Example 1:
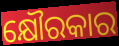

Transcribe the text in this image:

କ୍ଷୌରକାର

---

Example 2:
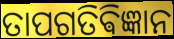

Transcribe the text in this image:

ତାପଗତିଵିଜ୍ଞାନ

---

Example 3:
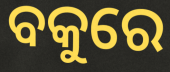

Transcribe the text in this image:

ବକୁରେ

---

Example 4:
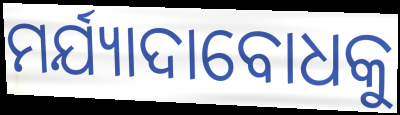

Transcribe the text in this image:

ମର୍ଯ୍ୟାଦାବୋଧକୁ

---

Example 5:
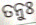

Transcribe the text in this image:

ତନୁଃ